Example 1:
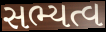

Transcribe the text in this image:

સભ્યત્વ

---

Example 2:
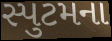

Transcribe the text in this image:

સ્પુટમના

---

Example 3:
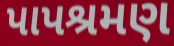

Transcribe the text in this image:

પાપશ્રમણ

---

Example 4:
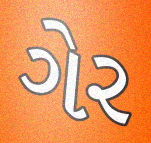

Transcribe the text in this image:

ગેર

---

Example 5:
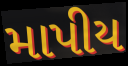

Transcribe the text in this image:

માપીય